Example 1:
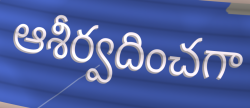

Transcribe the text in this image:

ఆశీర్వదించగా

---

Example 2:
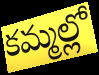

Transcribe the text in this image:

కమ్మల్లో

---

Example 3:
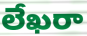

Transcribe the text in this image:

లేఖరా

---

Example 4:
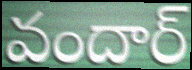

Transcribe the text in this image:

వందార్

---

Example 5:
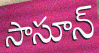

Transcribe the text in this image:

సాసూన్